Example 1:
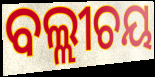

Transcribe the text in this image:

ବଲ୍ଲୀଚୟ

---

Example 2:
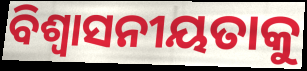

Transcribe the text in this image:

ବିଶ୍ୱାସନୀୟତାକୁ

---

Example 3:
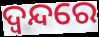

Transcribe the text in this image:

ଦ୍ୱନ୍ଦରେ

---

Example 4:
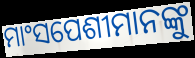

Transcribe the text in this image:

ମାଂସପେଶୀମାନଙ୍କୁ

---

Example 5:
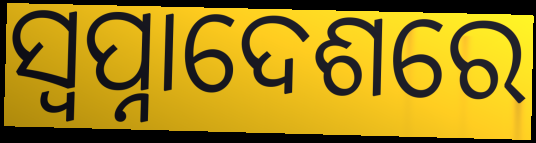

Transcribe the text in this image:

ସ୍ଵପ୍ନାଦେଶରେ